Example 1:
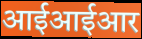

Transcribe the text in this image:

आईआईआर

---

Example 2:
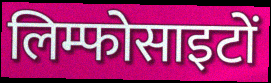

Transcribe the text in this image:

लिम्फोसाइटों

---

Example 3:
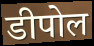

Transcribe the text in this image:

डीपोल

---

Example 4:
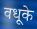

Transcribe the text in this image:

वधूके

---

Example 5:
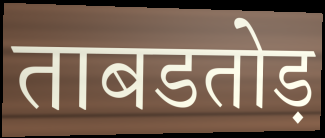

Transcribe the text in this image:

ताबडतोड़